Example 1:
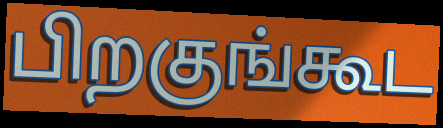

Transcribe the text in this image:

பிறகுங்கூட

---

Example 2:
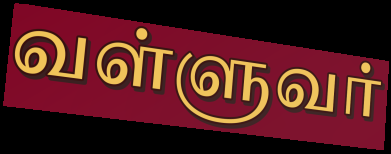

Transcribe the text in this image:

வள்ளுவர்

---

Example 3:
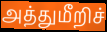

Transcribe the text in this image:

அத்துமீறிச்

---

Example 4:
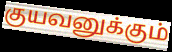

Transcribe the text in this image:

குயவனுக்கும்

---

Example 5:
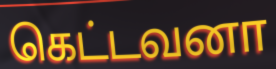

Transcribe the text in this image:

கெட்டவனா